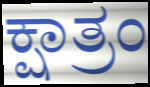
ಕ್ಷಾತ್ರಂ